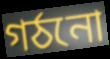
গঠনো